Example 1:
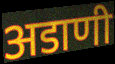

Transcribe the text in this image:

अडाणी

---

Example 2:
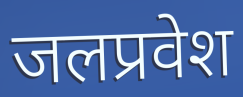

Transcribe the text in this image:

जलप्रवेश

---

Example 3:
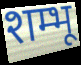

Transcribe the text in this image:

शम्भू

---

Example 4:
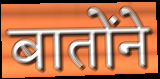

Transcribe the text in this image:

बातोंने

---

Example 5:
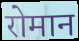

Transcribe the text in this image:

रोमान